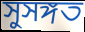
সুসঙ্গত